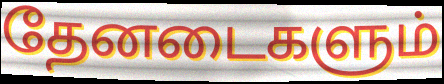
தேனடைகளும்